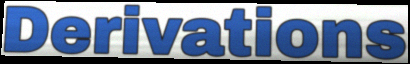
Derivations